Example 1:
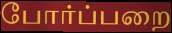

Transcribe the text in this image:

போர்ப்பறை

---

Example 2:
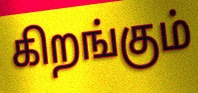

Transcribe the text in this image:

கிறங்கும்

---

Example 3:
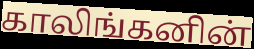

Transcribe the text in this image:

காலிங்கனின்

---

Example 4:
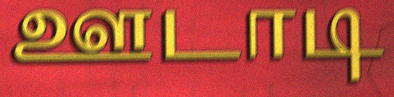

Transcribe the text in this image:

ஊடாடி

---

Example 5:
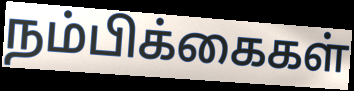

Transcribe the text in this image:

நம்பிக்கைகள்